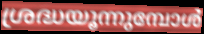
ശ്രദ്ധയൂന്നുമ്പോൾ